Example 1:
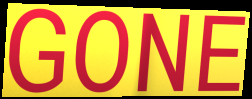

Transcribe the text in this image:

GONE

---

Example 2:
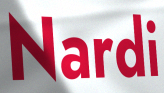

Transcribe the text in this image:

Nardi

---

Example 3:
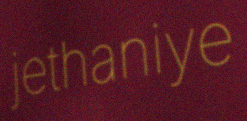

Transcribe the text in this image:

jethaniye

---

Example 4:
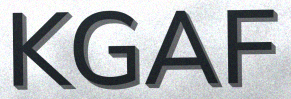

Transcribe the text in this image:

KGAF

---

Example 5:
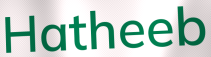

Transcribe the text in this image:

Hatheeb